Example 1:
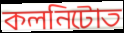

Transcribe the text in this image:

কলনিটোত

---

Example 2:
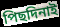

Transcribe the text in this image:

পিছদিনাই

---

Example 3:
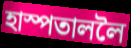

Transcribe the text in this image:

হাস্পতাললৈ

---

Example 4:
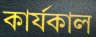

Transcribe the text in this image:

কাৰ্যকাল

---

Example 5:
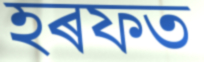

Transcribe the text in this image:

হৰফত